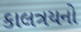
કાલત્રયનો